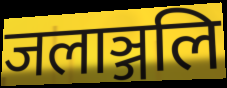
जलाञ्जलि